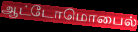
ஆட்டோமொபைல்